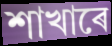
শাখাৰে